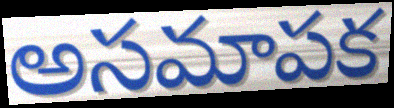
అసమాపక